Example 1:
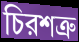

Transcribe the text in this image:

চিরশত্রু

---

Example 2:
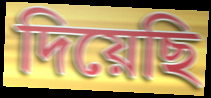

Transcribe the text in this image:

দিয়েছি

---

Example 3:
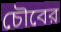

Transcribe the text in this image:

চৌবের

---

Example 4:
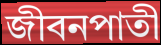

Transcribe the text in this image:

জীবনপাতী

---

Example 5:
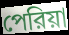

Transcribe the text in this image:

পেরিয়া